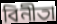
বিনীতা